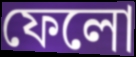
ফেলো